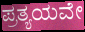
ಪ್ರತ್ಯಯವೇ